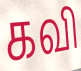
கவி